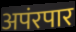
अपंरपार